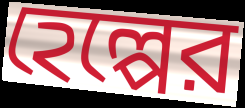
হেল্পের